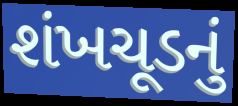
શંખચૂડનું